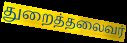
துறைத்தலைவர்